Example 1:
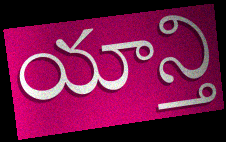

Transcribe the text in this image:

యాన్తి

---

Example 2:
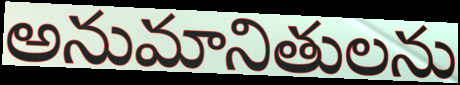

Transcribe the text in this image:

అనుమానితులను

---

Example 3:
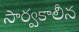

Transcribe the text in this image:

సార్వకాలీన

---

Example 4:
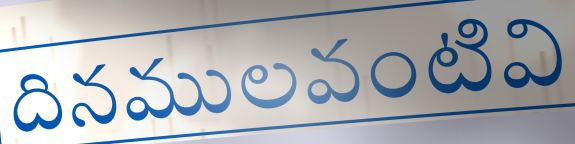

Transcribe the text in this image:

దినములవంటివి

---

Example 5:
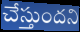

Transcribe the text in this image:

చేస్తుందని